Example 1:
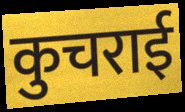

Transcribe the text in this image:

कुचराई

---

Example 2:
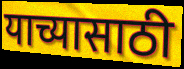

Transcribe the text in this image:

याच्यासाठी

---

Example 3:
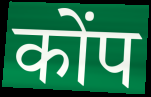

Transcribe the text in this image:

कोंप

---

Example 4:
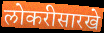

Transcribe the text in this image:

लोकरीसारखे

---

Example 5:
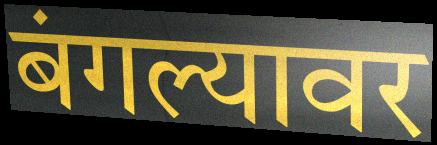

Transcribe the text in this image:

बंगल्यावर